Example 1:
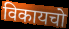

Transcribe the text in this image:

विकायचो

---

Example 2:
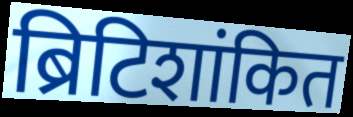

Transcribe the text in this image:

ब्रिटिशांकित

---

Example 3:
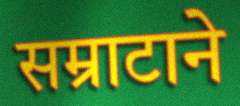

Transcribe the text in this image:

सम्राटाने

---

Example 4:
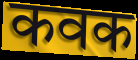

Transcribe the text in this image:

कवक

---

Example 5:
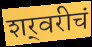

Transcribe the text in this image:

शर्वरीचं